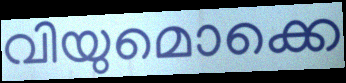
വിയുമൊക്കെ